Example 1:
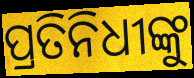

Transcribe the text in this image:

ପ୍ରତିନିଧୀଙ୍କୁ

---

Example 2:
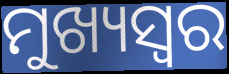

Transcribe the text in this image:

ମୁଖ୍ୟସ୍ୱର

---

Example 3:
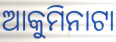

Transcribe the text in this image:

ଆକୁମିନାଟା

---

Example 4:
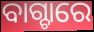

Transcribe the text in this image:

ବାଗ୍ଚାରେ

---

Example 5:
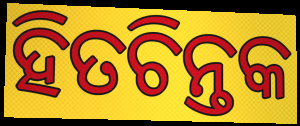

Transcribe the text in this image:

ହିତଚିନ୍ତକ